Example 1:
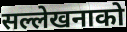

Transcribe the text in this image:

सल्लेखनाको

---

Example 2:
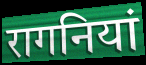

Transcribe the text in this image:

रागनियां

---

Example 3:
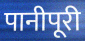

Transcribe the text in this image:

पानीपूरी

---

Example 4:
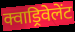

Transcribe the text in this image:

क्वाड्रिवेलेंट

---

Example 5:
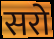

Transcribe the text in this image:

सरो